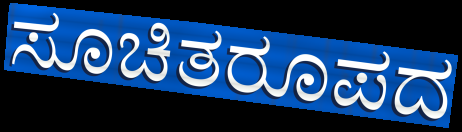
ಸೂಚಿತರೂಪದ